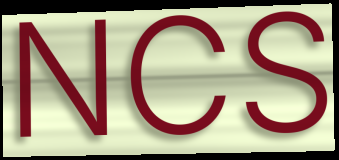
NCS